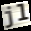
jl